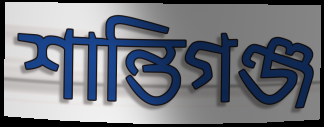
শান্তিগঞ্জ